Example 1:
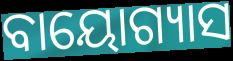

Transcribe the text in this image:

ବାୟୋଗ୍ୟାସ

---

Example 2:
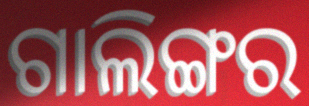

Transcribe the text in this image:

ଗାଲିଙ୍ଗର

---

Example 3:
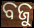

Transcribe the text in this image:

ବଜୁ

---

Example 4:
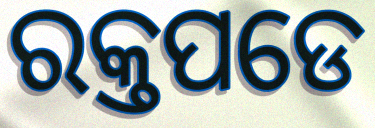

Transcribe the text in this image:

ରକ୍ତପଡେ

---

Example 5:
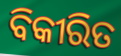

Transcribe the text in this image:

ବିକୀରିତ